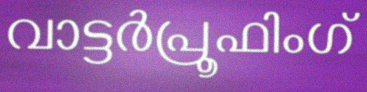
വാട്ടർപ്രൂഫിംഗ്